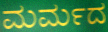
ಮರ್ಮದ